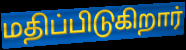
மதிப்பிடுகிறார்